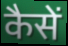
कैसें